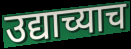
उद्याच्याच